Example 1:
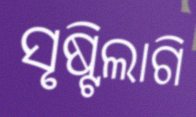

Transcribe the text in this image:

ସୃଷ୍ଟିଲାଗି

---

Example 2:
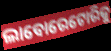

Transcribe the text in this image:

ଲାବୋରେଟୋରିକୁ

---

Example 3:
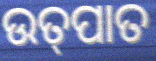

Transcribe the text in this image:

ଉତ୍‌ପାତ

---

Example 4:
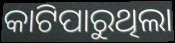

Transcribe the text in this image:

କାଟିପାରୁଥିଲା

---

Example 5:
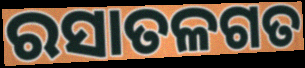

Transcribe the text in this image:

ରସାତଳଗତ